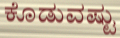
ಕೊಡುವಷ್ಟು